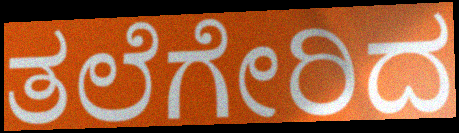
ತಲೆಗೇರಿದ